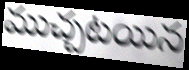
ముచ్చటయిన